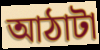
আঠাটা